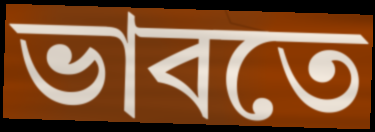
ভাবতে